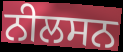
ਨੀਲਸਨ